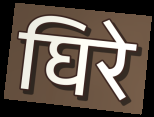
घिरे